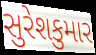
સુરેશકુમાર